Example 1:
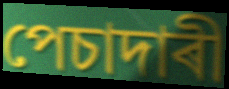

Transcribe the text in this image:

পেচাদাৰী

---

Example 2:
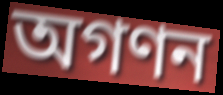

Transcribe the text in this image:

অগণন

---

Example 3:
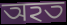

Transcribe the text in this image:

অহত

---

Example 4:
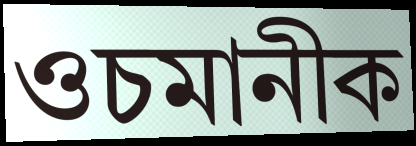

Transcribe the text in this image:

ওচমানীক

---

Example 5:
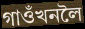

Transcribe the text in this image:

গাওঁখনলৈ